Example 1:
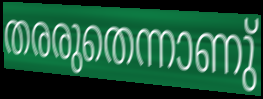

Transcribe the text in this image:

തരരുതെന്നാണു്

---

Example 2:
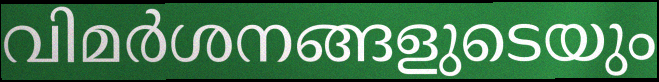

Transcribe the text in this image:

വിമർശനങ്ങളുടെയും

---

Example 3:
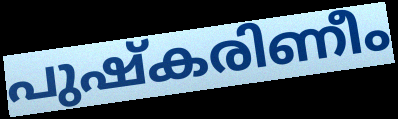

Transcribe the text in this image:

പുഷ്കരിണീം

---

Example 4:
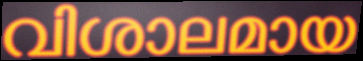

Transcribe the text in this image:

വിശാലമായ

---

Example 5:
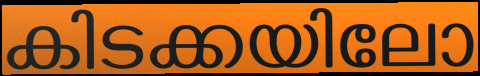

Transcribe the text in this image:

കിടക്കയിലോ